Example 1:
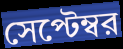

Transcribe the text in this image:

সেপ্টেম্বর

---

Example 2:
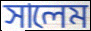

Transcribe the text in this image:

সালেম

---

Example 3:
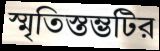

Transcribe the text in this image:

স্মৃতিস্তম্ভটির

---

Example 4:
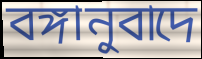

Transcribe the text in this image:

বঙ্গানুবাদে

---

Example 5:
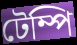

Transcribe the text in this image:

টেম্পি